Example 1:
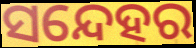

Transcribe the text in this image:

ସନ୍ଦେହର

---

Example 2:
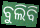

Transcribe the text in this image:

ବୁଲିବି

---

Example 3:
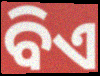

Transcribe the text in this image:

ବିଏ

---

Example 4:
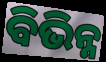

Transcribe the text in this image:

ବିଭିନ୍ନ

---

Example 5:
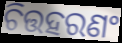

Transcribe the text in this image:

ଚିତ୍ତହରଣଂ